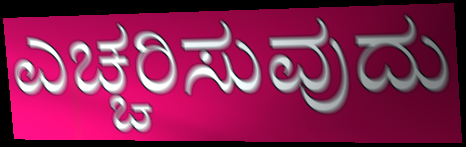
ಎಚ್ಚರಿಸುವುದು